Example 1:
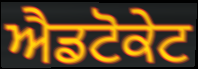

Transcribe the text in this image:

ਐਡਟੋਕੇਟ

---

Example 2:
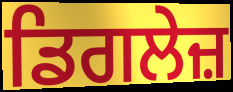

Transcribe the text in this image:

ਡਿਗਲੇਜ਼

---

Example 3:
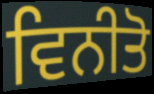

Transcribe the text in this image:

ਵਿਨੀਤੋ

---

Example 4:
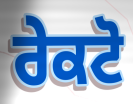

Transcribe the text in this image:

ਰੇਕਟੋ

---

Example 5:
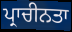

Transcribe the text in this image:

ਪ੍ਰਾਚੀਨਤਾ